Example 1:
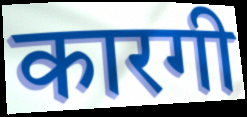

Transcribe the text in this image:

कारगी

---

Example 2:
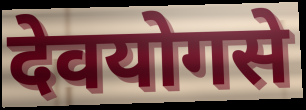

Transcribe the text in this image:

देवयोगसे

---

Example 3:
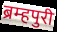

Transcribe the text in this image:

ब्रम्हपुरी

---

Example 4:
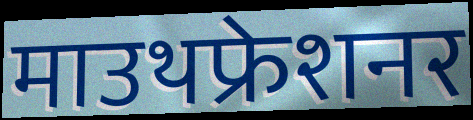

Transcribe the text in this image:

माउथफ्रेशनर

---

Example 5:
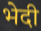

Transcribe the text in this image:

भेदी